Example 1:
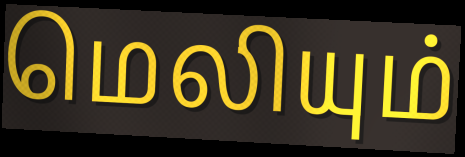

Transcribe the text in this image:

மெலியும்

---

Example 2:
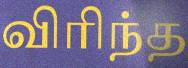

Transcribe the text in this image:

விரிந்த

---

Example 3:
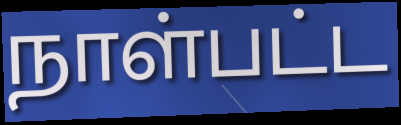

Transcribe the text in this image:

நாள்பட்ட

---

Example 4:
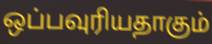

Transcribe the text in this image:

ஒப்பவுரியதாகும்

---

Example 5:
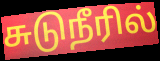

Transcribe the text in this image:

சுடுநீரில்